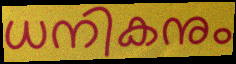
ധനികനും